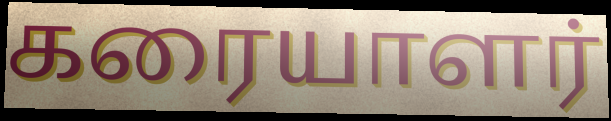
கரையாளர்